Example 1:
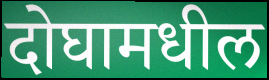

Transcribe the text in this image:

दोघामधील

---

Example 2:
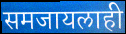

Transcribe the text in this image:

समजायलाही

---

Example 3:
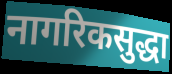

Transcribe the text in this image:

नागरिकसुद्धा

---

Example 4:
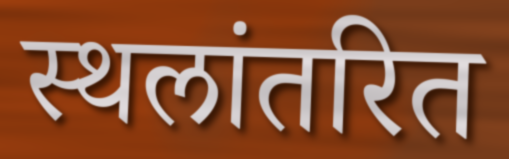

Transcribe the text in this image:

स्थलांतरित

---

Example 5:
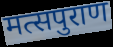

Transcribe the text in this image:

मत्सपुराण